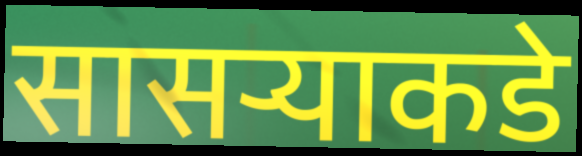
सासऱ्याकडे